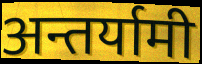
अन्‍तर्यामी